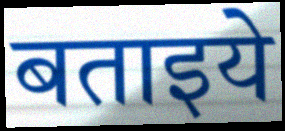
बताइये